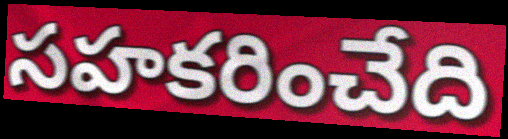
సహకరించేది